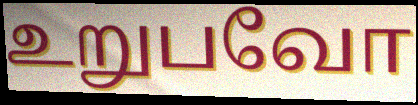
உறுபவோ